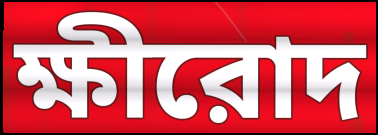
ক্ষীরোদ